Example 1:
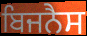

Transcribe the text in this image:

ਬਿਜਨੈਸ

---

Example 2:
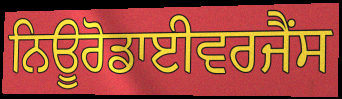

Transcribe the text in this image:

ਨਿਊਰੋਡਾਈਵਰਜੈਂਸ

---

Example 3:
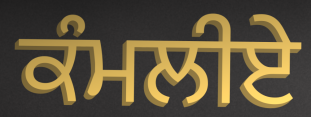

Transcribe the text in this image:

ਕੰਮਲੀਏ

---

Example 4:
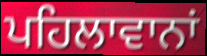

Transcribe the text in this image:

ਪਹਿਲਾਵਾਨਾਂ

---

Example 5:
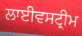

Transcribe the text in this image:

ਲਾਈਵਸਟ੍ਰੀਮ